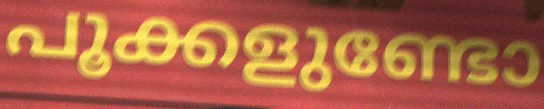
പൂക്കളുണ്ടോ